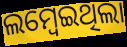
ଲମ୍ବେଇଥିଲା